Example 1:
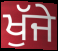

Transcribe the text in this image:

ਖੁੱਜੇ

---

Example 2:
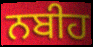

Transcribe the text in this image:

ਨਬੀਹ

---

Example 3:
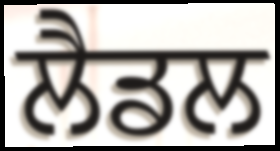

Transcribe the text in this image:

ਲੈਡਲ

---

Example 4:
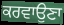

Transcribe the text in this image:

ਕਰਵਾਉਣਾ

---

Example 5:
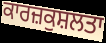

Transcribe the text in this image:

ਕਾਰਜ਼ਕੁਸ਼ਲਤਾ